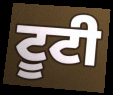
ਟੂਟੀ